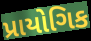
પ્રાયોગિક